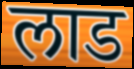
लाड